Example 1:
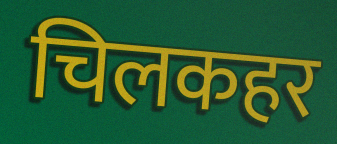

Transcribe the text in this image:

चिलकहर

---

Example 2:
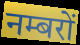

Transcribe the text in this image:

नम्बरों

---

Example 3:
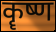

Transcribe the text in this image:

कॄष्ण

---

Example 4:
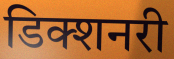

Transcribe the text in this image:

डिक्‍शनरी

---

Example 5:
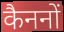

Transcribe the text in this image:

कैननों